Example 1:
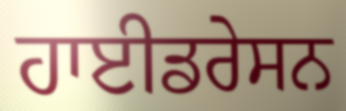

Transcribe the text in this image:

ਹਾਈਡਰੇਸਨ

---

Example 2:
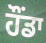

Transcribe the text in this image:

ਹੌਂਡਾ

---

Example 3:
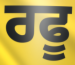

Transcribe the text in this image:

ਰਫੂ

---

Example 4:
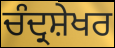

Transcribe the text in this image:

ਚੰਦ੍ਰਸ਼ੇਖਰ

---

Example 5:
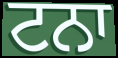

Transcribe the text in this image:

ਟਨਾ